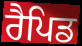
ਰੈਪਿਡ